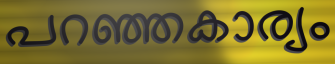
പറഞ്ഞകാര്യം